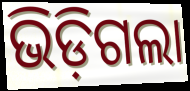
ଭିଡ଼ିଗଲା